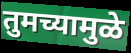
तुमच्यामुळे